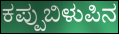
ಕಪ್ಪುಬಿಳುಪಿನ